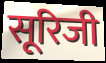
सूरिजी